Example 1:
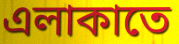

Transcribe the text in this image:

এলাকাতে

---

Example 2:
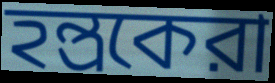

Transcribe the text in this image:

হন্ত্রকেরা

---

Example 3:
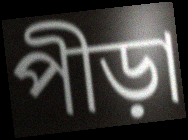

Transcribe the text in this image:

পীড়া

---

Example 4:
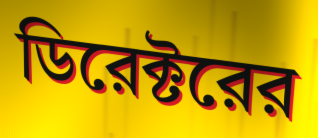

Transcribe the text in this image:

ডিরেক্টরের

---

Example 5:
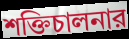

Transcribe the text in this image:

শক্তিচালনার